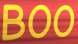
BOO